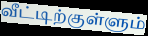
வீட்டிற்குள்ளும்